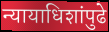
न्यायाधिशांपुढे